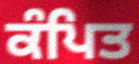
ਕੰਪਿਤ